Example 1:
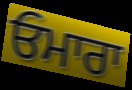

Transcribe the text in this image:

ਓਮਾਰਾ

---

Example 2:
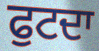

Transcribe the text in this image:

ਫੁਟਦਾ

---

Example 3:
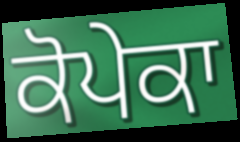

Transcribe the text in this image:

ਕੋਪੇਕਾ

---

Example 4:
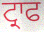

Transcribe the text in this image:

ਟ੍ਰਾਫ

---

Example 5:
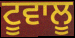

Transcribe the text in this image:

ਟੂਵਾਲੂ